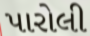
પારોલી